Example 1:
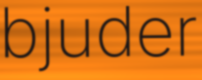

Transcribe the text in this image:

bjuder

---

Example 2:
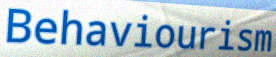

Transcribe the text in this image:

Behaviourism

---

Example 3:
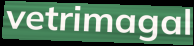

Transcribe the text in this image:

vetrimagal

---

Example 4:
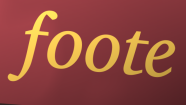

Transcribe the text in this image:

foote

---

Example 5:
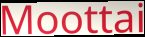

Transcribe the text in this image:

Moottai